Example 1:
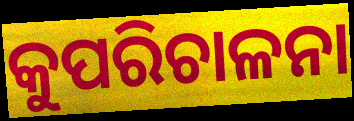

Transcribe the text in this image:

କୁପରିଚାଳନା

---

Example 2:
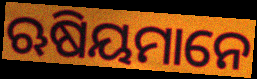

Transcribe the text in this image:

ଋଷିୟମାନେ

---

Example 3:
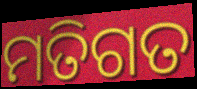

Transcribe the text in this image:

ମତିଗତ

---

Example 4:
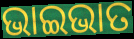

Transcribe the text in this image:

ଭାଇଭାତ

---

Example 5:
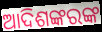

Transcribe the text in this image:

ଆଦିଶଙ୍କରଙ୍କ